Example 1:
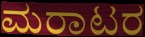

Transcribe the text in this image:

ಮರಾಟರ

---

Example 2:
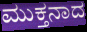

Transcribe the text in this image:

ಮುಕ್ತನಾದ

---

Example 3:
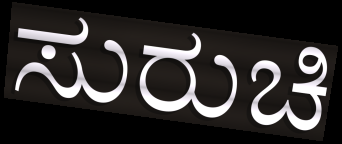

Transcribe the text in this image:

ಸುರುಚಿ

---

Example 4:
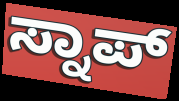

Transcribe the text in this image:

ಸ್ನಾಪ್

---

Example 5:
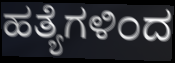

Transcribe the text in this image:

ಹತ್ಯೆಗಳಿಂದ